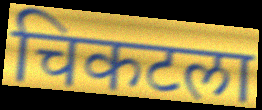
चिकटला